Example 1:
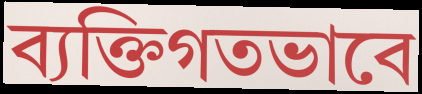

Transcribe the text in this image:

ব্যক্তিগতভাবে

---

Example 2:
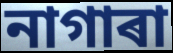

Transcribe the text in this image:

নাগাৰা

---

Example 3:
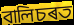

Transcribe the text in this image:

বালিচৰত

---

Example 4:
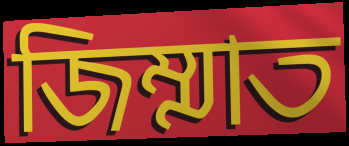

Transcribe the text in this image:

জিম্মাত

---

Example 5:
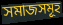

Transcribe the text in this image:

সমাজসমূহ